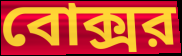
বোক্সর